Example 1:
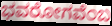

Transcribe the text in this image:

ಭವರೋಗವೆಂಬ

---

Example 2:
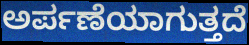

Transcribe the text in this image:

ಅರ್ಪಣೆಯಾಗುತ್ತದೆ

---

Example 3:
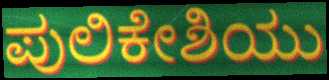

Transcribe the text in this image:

ಪುಲಿಕೇಶಿಯು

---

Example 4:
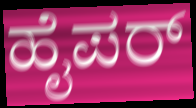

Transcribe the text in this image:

ಹೈಪರ್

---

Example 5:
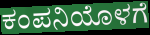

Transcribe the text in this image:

ಕಂಪನಿಯೊಳಗೆ